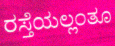
ರಸ್ತೆಯಲ್ಲಂತೂ